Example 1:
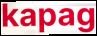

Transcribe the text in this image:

kapag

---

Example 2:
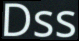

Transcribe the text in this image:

Dss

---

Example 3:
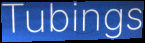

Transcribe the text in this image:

Tubings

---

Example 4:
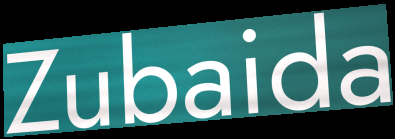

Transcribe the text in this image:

Zubaida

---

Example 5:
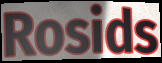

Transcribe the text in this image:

Rosids